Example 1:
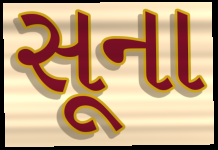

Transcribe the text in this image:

સૂના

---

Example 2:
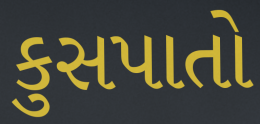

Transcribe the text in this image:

કુસપાતો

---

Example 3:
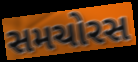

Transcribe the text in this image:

સમચોરસ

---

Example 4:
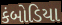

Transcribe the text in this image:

કંબોડિયા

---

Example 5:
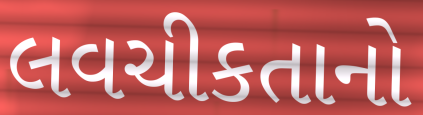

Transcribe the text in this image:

લવચીકતાનો